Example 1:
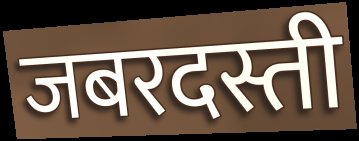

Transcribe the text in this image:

जबरदस्ती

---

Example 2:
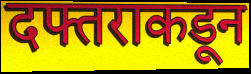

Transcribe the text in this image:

दफ्तराकडून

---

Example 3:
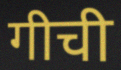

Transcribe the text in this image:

गीची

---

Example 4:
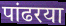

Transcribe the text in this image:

पांढरया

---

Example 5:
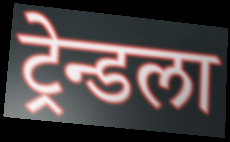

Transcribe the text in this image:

ट्रेन्डला